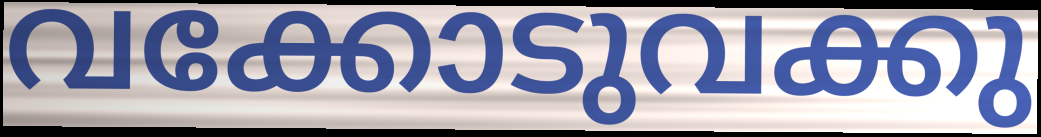
വക്കോടുവക്കു